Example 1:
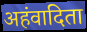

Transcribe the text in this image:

अहंवादिता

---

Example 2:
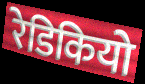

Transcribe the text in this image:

रेडिकियो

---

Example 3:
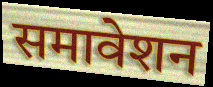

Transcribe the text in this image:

समावेशन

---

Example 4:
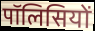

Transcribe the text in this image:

पॉलिसियों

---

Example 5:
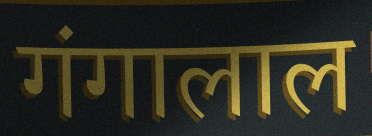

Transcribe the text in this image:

गंगालाल